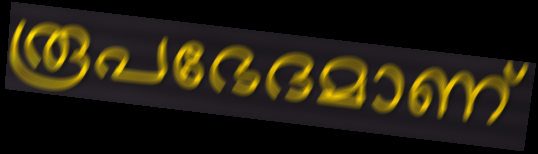
രൂപഭേദമാണ്